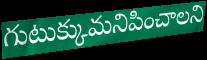
గుటుక్కుమనిపించాలని